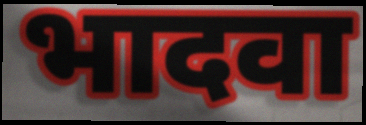
भादवा